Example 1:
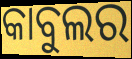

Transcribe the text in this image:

କାବୁଲର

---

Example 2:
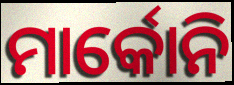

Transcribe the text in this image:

ମାର୍କୋନି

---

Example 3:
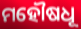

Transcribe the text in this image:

ମହୌଷଧୂ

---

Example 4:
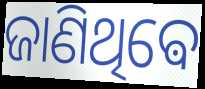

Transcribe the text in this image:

ଜାଣିଥିଵେ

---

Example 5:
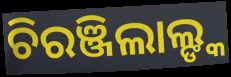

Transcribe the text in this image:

ଚିରଞ୍ଜିଲାଲ୍ଙ୍କ